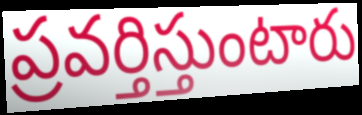
ప్రవర్తిస్తుంటారు